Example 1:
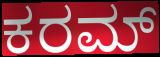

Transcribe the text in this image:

ಕರಮ್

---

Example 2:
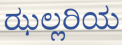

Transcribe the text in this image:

ಝಲ್ಲರಿಯ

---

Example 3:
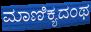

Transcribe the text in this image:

ಮಾಣಿಕ್ಯದಂಥ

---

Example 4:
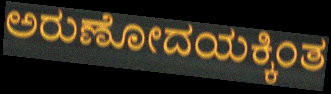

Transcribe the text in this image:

ಅರುಣೋದಯಕ್ಕಿಂತ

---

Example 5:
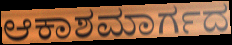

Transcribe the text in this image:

ಆಕಾಶಮಾರ್ಗದ